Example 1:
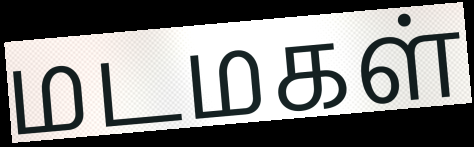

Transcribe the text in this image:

மடமகள்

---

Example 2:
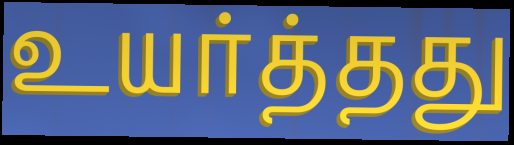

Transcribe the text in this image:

உயர்த்தது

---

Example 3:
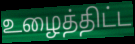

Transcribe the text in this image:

உழைத்திட்ட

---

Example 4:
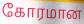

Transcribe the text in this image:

கோரமான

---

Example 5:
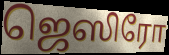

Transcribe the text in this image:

ஜெஸிரோ